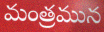
మంత్రమున